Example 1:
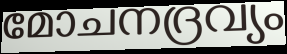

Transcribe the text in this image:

മോചനദ്രവ്യം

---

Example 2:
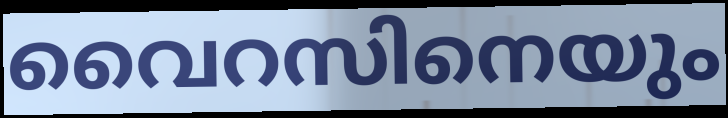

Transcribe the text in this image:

വൈറസിനെയും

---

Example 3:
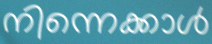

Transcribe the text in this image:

നിന്നെക്കാൾ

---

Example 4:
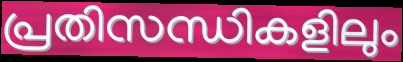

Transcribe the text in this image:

പ്രതിസന്ധികളിലും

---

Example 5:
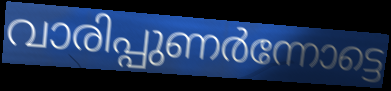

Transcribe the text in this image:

വാരിപ്പുണർന്നോട്ടെ